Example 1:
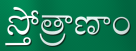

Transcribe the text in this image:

స్తోత్రాణాం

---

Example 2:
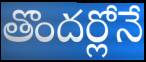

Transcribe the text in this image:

తొందర్లోనే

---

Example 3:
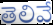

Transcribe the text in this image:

తెలివే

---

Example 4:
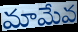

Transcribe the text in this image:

మామేవ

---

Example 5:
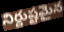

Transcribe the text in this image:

నిర్దుష్టమైన